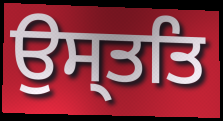
ਉਸ੍ਤਤਿ